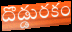
దొడ్డురకం